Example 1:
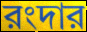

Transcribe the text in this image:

রংদার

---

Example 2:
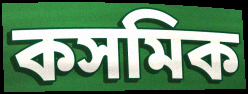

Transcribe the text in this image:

কসমিক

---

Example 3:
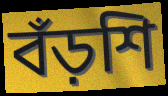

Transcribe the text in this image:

বঁড়শি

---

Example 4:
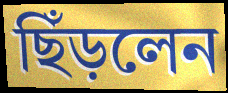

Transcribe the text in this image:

ছিঁড়লেন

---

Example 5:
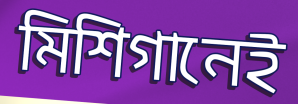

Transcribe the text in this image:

মিশিগানেই